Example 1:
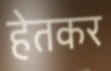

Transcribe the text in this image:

हेतकर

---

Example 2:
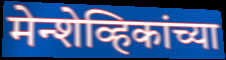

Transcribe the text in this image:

मेन्शेव्हिकांच्या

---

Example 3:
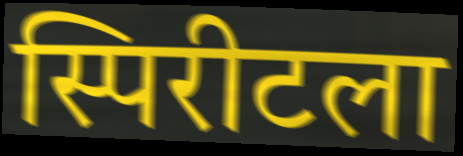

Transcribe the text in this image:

स्पिरीटला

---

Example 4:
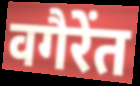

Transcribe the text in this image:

वगैरेंत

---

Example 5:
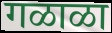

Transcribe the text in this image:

गळाळा